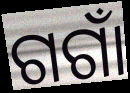
ଗଗାଁ